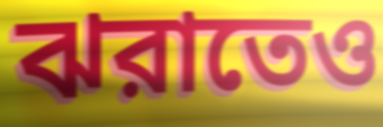
ঝরাতেও